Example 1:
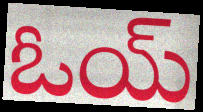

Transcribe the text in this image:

ఓయ్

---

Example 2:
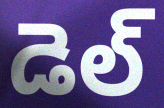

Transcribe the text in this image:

డెల్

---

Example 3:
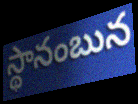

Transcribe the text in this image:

స్థానంబున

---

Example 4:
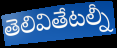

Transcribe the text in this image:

తెలివితేటల్నీ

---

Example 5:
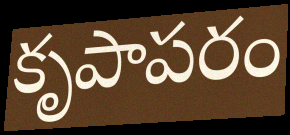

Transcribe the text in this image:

కృపాపరం